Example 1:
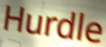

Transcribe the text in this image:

Hurdle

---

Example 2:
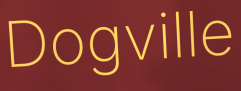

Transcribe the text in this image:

Dogville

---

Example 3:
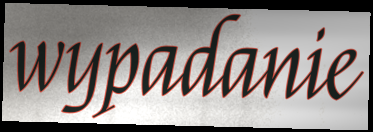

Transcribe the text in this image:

wypadanie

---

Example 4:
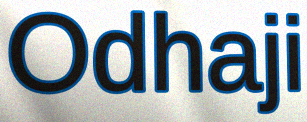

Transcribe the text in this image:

Odhaji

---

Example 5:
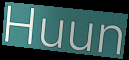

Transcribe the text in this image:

Huun